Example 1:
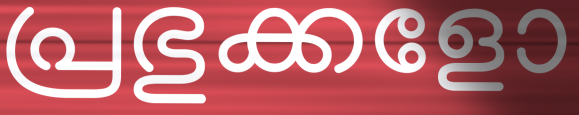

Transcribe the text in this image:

പ്രഭുക്കളോ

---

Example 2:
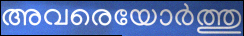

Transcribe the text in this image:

അവരെയോർത്തു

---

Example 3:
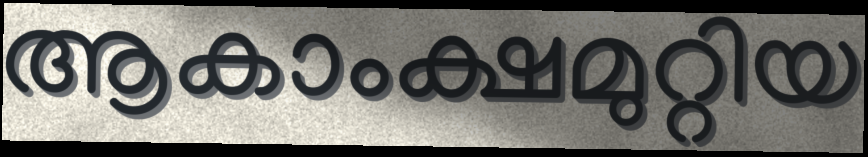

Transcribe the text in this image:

ആകാംക്ഷമുറ്റിയ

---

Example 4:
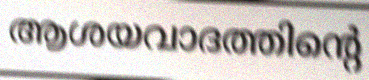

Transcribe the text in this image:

ആശയവാദത്തിന്റെ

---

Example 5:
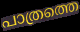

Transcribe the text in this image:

പാത്രത്തെ